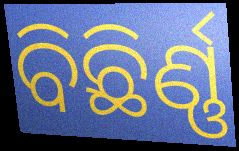
ବିଛିର୍ଣ୍ଣ